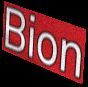
Bion